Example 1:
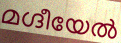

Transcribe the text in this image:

മഗ്ദീയേൽ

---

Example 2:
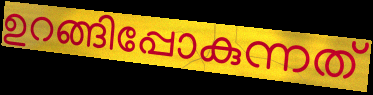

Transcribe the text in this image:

ഉറങ്ങിപ്പോകുന്നത്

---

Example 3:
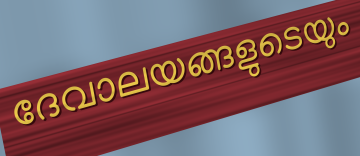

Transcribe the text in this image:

ദേവാലയങ്ങളുടെയും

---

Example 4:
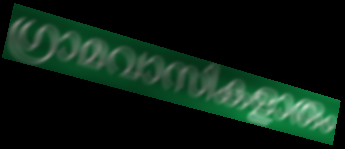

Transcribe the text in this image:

ഗ്രാമവാസികളാരും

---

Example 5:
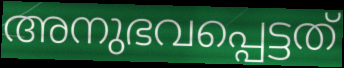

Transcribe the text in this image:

അനുഭവപ്പെട്ടത്